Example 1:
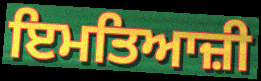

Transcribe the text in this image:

ਇਮਤਿਆਜ਼ੀ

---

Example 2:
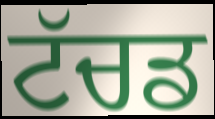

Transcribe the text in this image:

ਟੱਚਡ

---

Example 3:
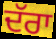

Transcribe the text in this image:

ਦੱਰਾ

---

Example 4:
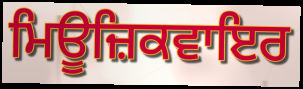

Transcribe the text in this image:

ਮਿਊਜ਼ਿਕਵਾਇਰ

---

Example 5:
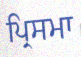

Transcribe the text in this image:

ਪ੍ਰਿਸਮਾ